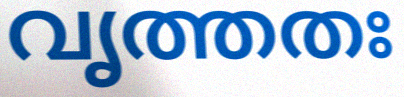
വൃത്തതഃ